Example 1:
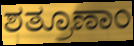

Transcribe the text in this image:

ಶತ್ರೂಣಾಂ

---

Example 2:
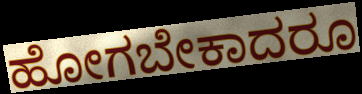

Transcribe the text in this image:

ಹೋಗಬೇಕಾದರೂ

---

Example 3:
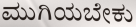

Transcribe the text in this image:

ಮುಗಿಯಬೇಕು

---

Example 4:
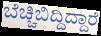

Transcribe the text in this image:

ಬೆಚ್ಚಿಬಿದ್ದಿದ್ದಾರೆ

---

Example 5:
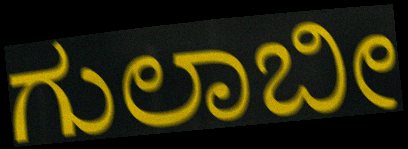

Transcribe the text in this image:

ಗುಲಾಬೀ